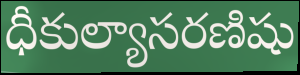
ధీకుల్యాసరణిషు